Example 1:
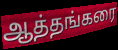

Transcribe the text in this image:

ஆத்தங்கரை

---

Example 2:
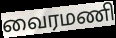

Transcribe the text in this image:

வைரமணி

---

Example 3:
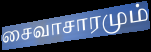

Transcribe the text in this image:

சைவாசாரமும்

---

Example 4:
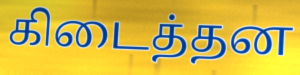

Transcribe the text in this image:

கிடைத்தன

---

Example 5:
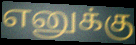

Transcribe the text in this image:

எனுக்கு